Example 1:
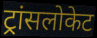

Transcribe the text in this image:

ट्रांसलोकेट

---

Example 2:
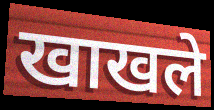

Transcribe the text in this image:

खाखले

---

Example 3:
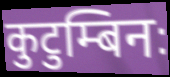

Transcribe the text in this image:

कुटुम्बिनः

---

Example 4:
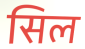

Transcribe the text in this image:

सिल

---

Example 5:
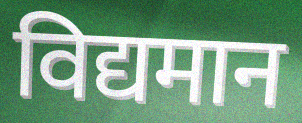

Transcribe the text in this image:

विद्यमान